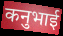
कनुभाई